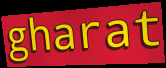
gharat